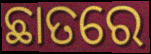
ଛାତରେ